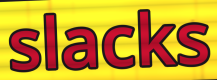
slacks